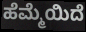
ಹೆಮ್ಮೆಯಿದೆ